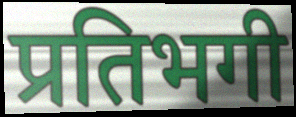
प्रतिभगी